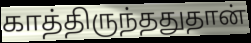
காத்திருந்ததுதான்